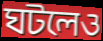
ঘটলেও